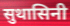
सुथासिनी